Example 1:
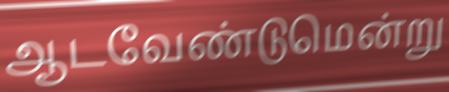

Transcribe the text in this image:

ஆடவேண்டுமென்று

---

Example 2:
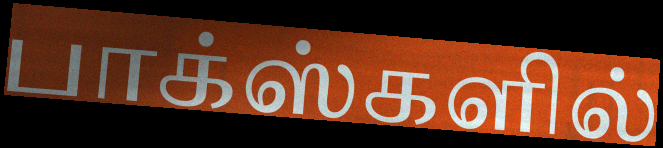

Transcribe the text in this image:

பாக்ஸ்களில்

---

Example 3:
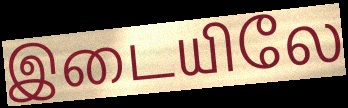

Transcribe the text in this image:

இடையிலே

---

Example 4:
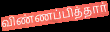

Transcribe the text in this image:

விண்ணப்பித்தார்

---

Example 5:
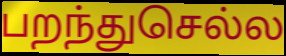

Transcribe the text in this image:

பறந்துசெல்ல